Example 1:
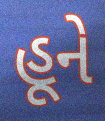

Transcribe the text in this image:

હૂને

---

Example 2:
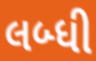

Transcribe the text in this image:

લબ્ધી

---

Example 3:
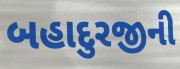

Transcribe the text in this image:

બહાદુરજીની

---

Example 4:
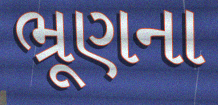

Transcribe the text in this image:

ભ્રૂણના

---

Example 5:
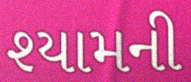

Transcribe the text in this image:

શ્યામની